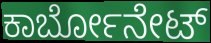
ಕಾರ್ಬೋನೇಟ್